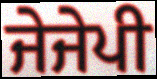
ਜੇਜੇਪੀ